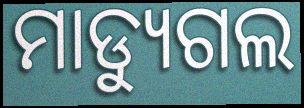
ମାଡ୍ୟୁଗଲ